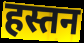
हस्तन